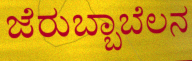
ಜೆರುಬ್ಬಾಬೆಲನ